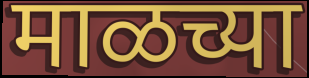
माळच्या